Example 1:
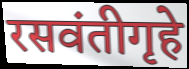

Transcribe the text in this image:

रसवंतीगृहे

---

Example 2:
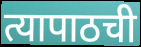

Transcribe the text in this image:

त्यापाठची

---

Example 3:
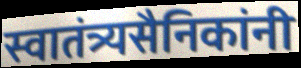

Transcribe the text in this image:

स्वातंत्र्यसैनिकांनी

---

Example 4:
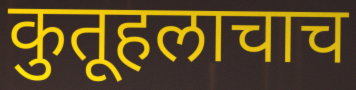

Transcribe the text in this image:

कुतूहलाचाच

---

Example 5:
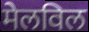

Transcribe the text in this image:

मेलविल